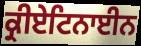
ਕ੍ਰੀਏਟਿਨਾਈਨ